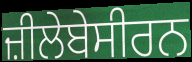
ਜ਼ੀਲੇਬੇਸੀਰਨ